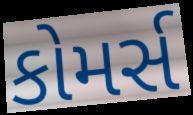
કોમર્સ